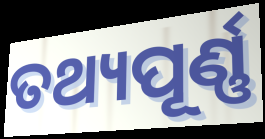
ତଥ୍ୟପୂର୍ଣ୍ଣ